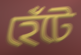
হেঁটে